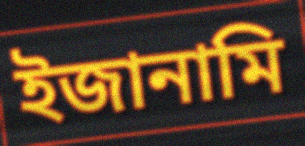
ইজানামি